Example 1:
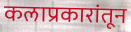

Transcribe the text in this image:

कलाप्रकारांतून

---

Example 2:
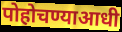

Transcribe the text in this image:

पोहोचण्याआधी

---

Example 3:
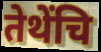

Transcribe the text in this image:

तेथेंचि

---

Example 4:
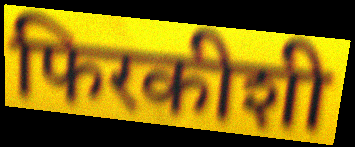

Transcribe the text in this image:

फिरकीशी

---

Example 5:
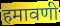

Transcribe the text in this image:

हमावणी